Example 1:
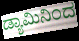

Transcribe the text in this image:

ಡ್ಯಾಮಿನಿಂದ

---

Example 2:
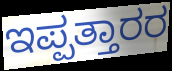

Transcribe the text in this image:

ಇಪ್ಪತ್ತಾರರ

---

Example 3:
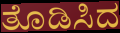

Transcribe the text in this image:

ತೊಡಿಸಿದ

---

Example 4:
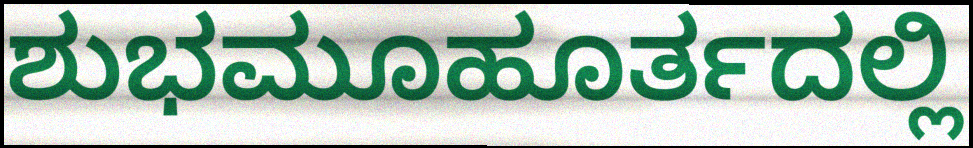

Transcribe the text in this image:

ಶುಭಮೂಹೂರ್ತದಲ್ಲಿ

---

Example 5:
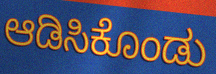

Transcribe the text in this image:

ಆಡಿಸಿಕೊಂಡು